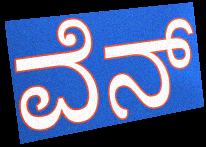
ವೆನ್